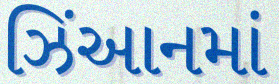
ઝિંઆનમાં